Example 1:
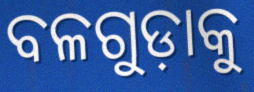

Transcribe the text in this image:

ବଳଗୁଡ଼ାକୁ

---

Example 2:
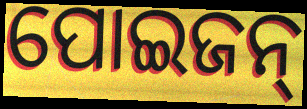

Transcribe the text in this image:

ପୋଇଜନ୍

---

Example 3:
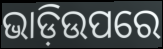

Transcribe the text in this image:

ଭାଡ଼ିଉପରେ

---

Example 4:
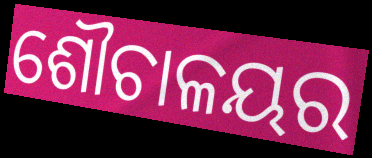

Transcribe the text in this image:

ଶୌଚାଳୟର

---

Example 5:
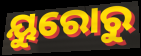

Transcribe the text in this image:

ୟୁରୋରୁ